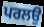
ਪਰਲਉ